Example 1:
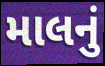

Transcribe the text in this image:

માલનું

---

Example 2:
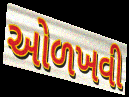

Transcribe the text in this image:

ઓળખવી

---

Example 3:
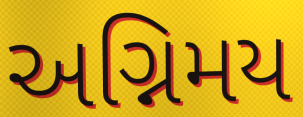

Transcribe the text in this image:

અગ્નિમય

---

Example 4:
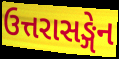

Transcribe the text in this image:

ઉત્તરાસઙ્ગેન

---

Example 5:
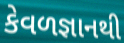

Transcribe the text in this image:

કેવળજ્ઞાનથી